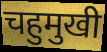
चहुमुखी